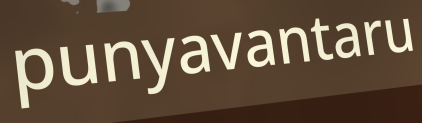
punyavantaru